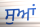
ਸੁਆਂ